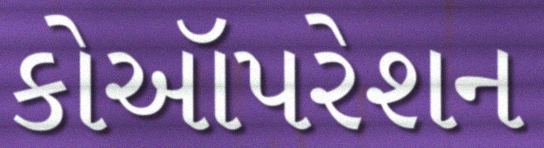
કોઑપરેશન